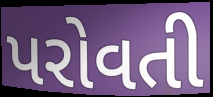
પરોવતી